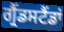
ਗ੍ਰੈਂਡਸਟੈਂਡਾਂ